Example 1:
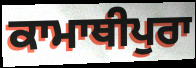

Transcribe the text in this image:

ਕਾਮਾਥੀਪੁਰਾ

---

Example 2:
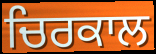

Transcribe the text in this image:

ਚਿਰਕਾਲ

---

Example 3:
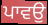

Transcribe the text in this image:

ਪਾਵਉ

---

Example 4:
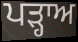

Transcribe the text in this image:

ਪੜ੍ਹਾਅ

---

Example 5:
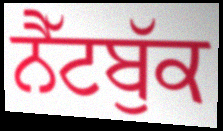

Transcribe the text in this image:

ਨੈੱਟਬੁੱਕ